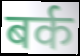
बर्क